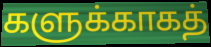
களுக்காகத்